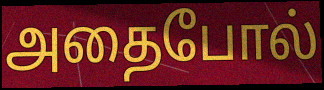
அதைபோல்